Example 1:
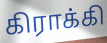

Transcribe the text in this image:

கிராக்கி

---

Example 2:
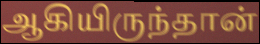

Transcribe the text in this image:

ஆகியிருந்தான்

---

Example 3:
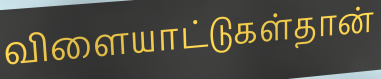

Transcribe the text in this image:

விளையாட்டுகள்தான்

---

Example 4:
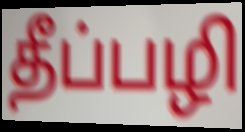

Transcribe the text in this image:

தீப்பழி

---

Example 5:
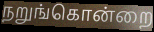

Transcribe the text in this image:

நறுங்கொன்றை